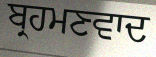
ਬ੍ਰਹਮਣਵਾਦ